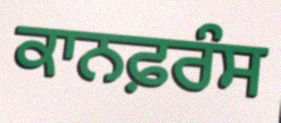
ਕਾਨਫ਼ਰੰਸ